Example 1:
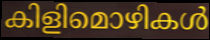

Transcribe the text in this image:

കിളിമൊഴികൾ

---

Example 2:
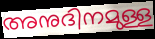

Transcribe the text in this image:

അനുദിനമുള്ള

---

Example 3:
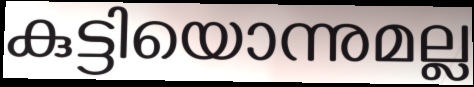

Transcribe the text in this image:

കുട്ടിയൊന്നുമല്ല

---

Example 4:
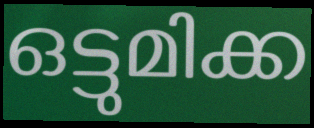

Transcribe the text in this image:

ഒട്ടുമിക്ക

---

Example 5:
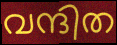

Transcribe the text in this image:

വന്ദിത